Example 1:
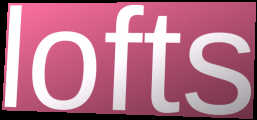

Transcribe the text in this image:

lofts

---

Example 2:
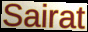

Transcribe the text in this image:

Sairat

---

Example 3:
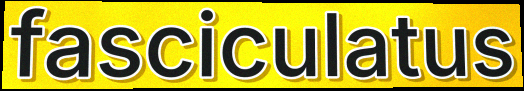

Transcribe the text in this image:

fasciculatus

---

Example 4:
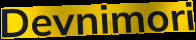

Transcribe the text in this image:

Devnimori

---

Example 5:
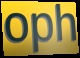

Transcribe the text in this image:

oph